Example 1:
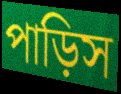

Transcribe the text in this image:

পাড়িস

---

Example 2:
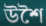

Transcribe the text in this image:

উশৈ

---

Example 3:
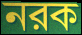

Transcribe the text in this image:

নরক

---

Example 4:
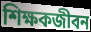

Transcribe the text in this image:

শিক্ষকজীবন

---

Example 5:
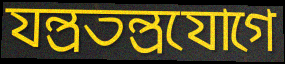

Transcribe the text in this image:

যন্ত্রতন্ত্রযোগে